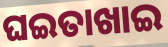
ଘଇତାଖାଇ